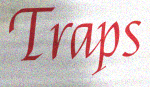
Traps